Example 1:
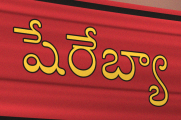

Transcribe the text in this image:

షేరేబ్యా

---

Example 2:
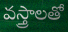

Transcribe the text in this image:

వస్త్రాలతో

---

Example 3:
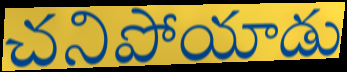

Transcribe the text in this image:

చనిపోయాడు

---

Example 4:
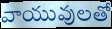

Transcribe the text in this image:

వాయువులతో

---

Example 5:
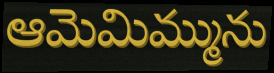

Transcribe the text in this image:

ఆమెమిమ్మును